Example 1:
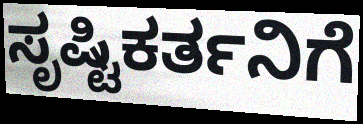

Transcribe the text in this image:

ಸೃಷ್ಟಿಕರ್ತನಿಗೆ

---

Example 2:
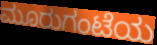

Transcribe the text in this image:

ಮೂರುಗಂಟೆಯ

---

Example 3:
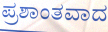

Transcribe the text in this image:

ಪ್ರಶಾಂತವಾದ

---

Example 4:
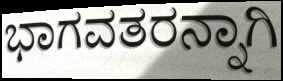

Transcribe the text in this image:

ಭಾಗವತರನ್ನಾಗಿ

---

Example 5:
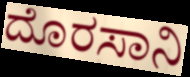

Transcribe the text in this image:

ದೊರಸಾನಿ